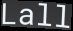
Lall